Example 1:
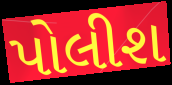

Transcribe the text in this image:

પોલીશ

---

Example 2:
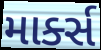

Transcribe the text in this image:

માર્ક્સ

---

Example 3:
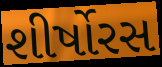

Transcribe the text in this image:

શીર્ષોરસ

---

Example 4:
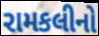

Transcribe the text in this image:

રામકલીનો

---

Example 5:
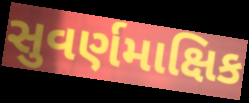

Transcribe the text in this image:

સુવર્ણમાક્ષિક